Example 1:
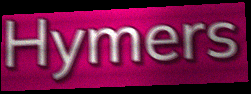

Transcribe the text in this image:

Hymers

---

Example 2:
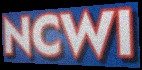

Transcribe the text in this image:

NCWI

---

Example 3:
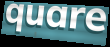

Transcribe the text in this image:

quare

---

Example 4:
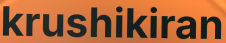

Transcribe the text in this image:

krushikiran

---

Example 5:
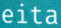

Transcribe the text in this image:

eita